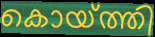
കൊയ്‌ത്തി